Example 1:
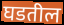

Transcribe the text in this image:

घडतील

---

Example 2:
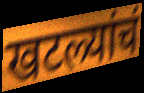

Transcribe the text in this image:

खटल्यांचं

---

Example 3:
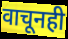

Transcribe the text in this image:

वाचूनही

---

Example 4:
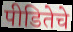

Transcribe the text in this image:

पीडितेचे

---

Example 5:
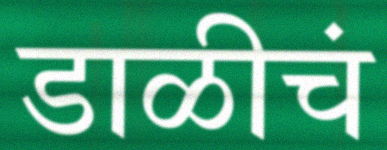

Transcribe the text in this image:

डाळीचं